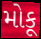
મોકૂ